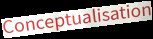
Conceptualisation